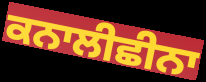
ਕਨਾਲੀਛੀਨਾ